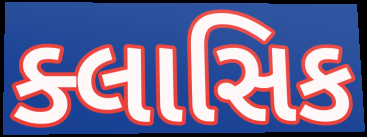
ક્લાસિક